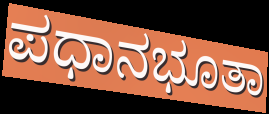
ಪಧಾನಭೂತಾ